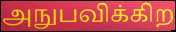
அநுபவிக்கிற